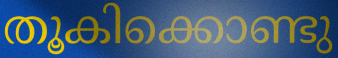
തൂകിക്കൊണ്ടു